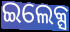
ଇଲେକ୍ସ